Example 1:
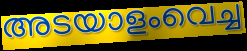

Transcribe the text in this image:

അടയാളംവെച്ച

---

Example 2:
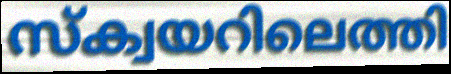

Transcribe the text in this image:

സ്ക്വയറിലെത്തി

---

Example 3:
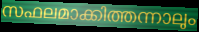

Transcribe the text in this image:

സഫലമാക്കിത്തന്നാലും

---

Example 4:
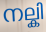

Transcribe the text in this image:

നല്കി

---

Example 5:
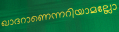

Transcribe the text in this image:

ഖാദറാണെന്നറിയാമല്ലോ